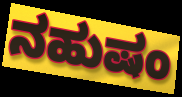
ನಹುಷಂ